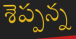
శెప్పన్న